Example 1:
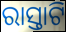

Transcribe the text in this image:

ରାସ୍ତାଟି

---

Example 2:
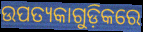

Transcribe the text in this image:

ଉପତ୍ୟକାଗୁଡ଼ିକରେ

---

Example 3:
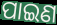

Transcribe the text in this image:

ପାଇଣ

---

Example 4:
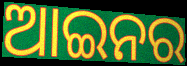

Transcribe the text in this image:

ଆଇନର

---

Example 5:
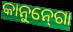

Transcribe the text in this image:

କାନୁନ୍‍ଗୋ